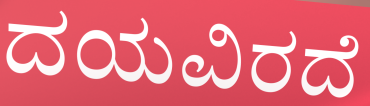
ದಯವಿರದೆ